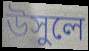
উসুলে